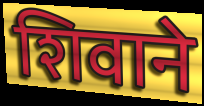
शिवाने